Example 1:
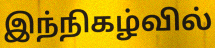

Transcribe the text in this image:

இந்நிகழ்வில்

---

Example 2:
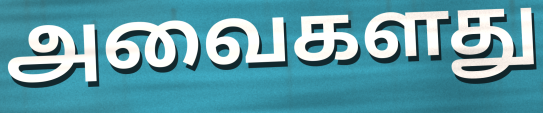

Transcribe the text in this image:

அவைகளது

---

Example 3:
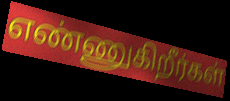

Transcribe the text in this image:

எண்ணுகிறீர்கள்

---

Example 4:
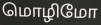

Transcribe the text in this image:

மொழிமோ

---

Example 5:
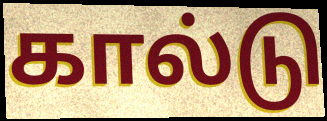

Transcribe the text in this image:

கால்டு